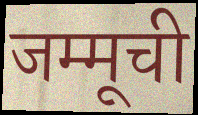
जम्मूची